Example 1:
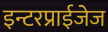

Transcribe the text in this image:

इन्टरप्राईजेज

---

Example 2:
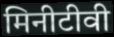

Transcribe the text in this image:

मिनीटीवी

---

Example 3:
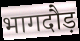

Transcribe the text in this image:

भागदौड़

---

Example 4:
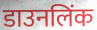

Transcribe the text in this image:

डाउनलिंक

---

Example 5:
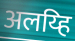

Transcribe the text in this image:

अलय्हि